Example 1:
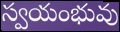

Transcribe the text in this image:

స్వయంభువు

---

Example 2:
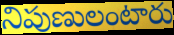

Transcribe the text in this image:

నిపుణులంటారు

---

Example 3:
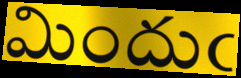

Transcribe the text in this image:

మిందుఁ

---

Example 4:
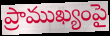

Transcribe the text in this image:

ప్రాముఖ్యంపై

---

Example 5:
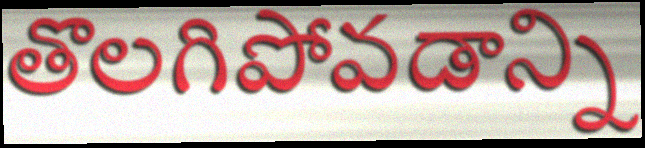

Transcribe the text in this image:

తొలగిపోవడాన్ని